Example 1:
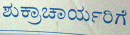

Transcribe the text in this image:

ಶುಕ್ರಾಚಾರ್ಯರಿಗೆ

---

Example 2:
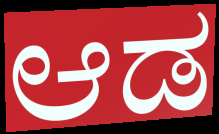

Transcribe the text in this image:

ಆಡ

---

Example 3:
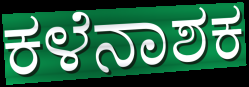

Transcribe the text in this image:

ಕಳೆನಾಶಕ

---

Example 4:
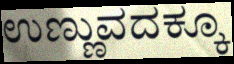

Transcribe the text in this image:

ಉಣ್ಣುವದಕ್ಕೂ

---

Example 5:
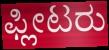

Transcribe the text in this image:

ಫ್ಲೀಟರು